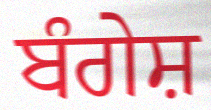
ਬੰਗੇਸ਼